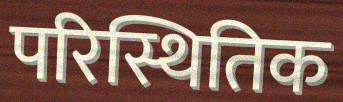
परिस्थितिक